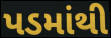
પડમાંથી